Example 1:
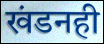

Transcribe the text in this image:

खंडनही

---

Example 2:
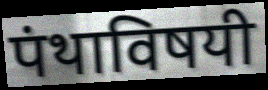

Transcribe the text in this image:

पंथाविषयी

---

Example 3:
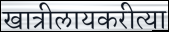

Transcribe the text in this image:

खात्रीलायकरीत्या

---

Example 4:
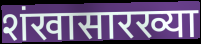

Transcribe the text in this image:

शंखासारख्या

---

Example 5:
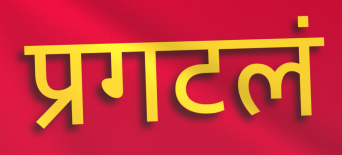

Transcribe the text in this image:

प्रगटलं